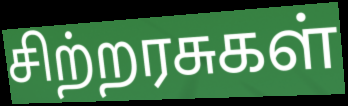
சிற்றரசுகள்